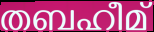
തബഹീമ്